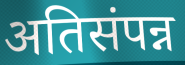
अतिसंपन्न